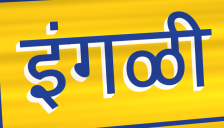
इंगळी